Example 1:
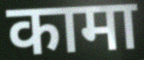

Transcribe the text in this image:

कामा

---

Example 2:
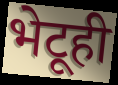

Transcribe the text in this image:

भेटूही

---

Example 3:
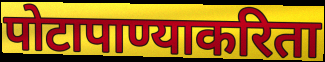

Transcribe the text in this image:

पोटापाण्याकरिता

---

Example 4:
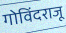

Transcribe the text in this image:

गोविंदराजू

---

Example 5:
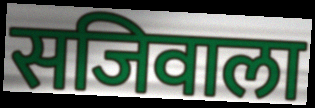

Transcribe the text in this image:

सजिवाला